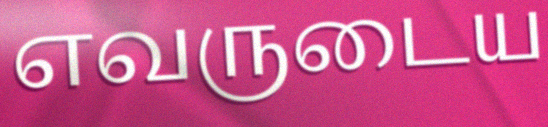
எவருடைய